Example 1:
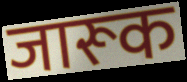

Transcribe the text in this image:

जारूक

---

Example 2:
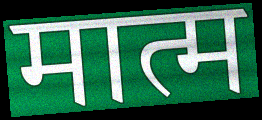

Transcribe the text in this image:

मात्म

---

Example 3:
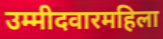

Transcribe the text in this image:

उम्मीदवारमहिला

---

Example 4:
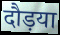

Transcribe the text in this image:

दौड़या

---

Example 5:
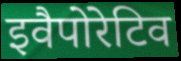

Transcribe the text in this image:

इवैपोरेटिव